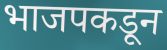
भाजपकडून